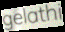
gelathi